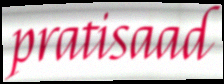
pratisaad